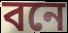
বনে